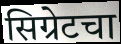
सिग्रेटचा